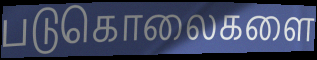
படுகொலைகளை